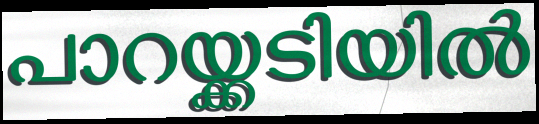
പാറയ്ക്കടിയിൽ